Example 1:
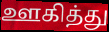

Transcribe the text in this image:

ஊகித்து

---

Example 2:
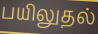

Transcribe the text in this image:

பயிலுதல்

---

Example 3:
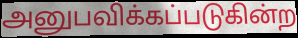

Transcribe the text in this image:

அனுபவிக்கப்படுகின்ற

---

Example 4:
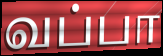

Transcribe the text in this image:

வப்பா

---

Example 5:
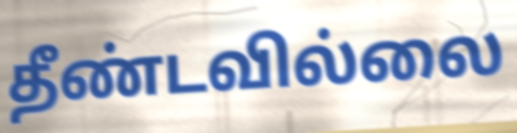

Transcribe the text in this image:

தீண்டவில்லை